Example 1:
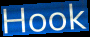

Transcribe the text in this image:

Hook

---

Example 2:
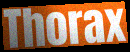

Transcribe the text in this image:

Thorax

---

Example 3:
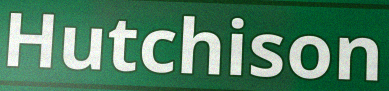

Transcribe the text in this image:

Hutchison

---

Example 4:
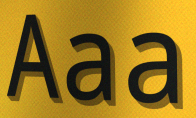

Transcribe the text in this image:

Aaa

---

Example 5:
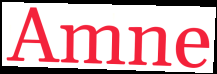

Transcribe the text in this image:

Amne